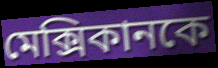
মেক্সিকানকে